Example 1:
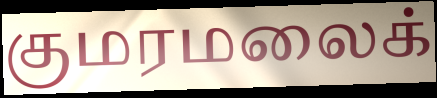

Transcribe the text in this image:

குமரமலைக்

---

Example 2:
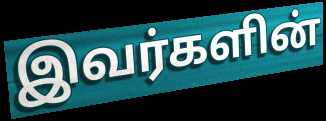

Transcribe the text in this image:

இவர்களின்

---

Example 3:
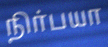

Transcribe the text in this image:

நிர்பயா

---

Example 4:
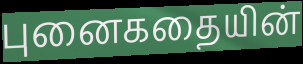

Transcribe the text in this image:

புனைகதையின்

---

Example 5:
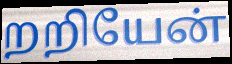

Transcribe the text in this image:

றறியேன்